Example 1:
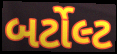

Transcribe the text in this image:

બર્ટોલ્ટ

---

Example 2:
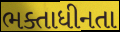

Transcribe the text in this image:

ભક્તાધીનતા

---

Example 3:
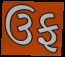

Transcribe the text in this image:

ઉફ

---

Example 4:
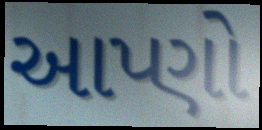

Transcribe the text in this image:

આપ્ણો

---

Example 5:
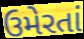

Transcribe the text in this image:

ઉમેરતાં